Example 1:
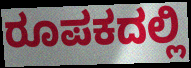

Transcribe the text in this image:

ರೂಪಕದಲ್ಲಿ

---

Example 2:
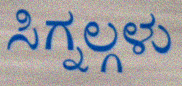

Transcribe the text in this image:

ಸಿಗ್ನಲ್ಗಳು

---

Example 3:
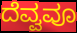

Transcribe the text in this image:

ದೆವ್ವವೂ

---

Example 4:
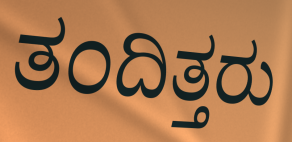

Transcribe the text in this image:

ತಂದಿತ್ತರು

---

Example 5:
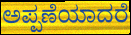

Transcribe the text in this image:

ಅಪ್ಪಣೆಯಾದರೆ